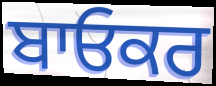
ਬਾਓਕਰ